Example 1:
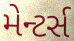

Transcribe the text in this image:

મેન્ટર્સ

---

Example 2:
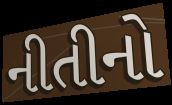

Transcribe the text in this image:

નીતીનો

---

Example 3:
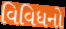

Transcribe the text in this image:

વિવિધનો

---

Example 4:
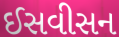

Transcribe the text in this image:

ઈસવીસન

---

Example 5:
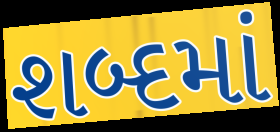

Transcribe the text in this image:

શબ્દમાં